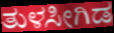
ತುಳಸೀಗಿಡ